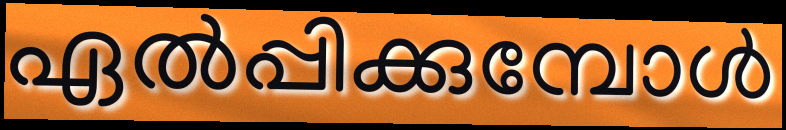
ഏൽപ്പിക്കുമ്പോൾ